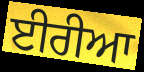
ਈਰੀਆ